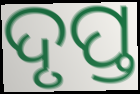
ଦୃପ୍ତ